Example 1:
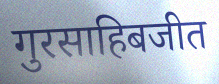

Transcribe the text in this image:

गुरसाहिबजीत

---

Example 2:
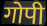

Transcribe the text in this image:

गोपी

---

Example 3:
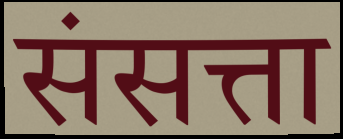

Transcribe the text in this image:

संसत्ता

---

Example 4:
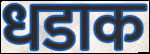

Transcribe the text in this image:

धडाक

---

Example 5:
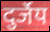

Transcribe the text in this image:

दुर्जेय